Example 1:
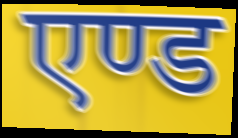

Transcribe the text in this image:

एण्ड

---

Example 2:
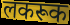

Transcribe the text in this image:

लकरूक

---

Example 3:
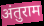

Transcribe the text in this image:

अंतुराम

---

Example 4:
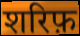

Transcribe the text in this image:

शरिफ़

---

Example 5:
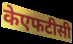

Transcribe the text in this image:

केएफटीसी